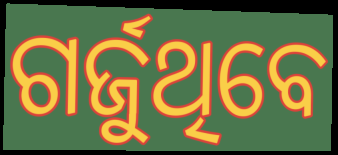
ଗର୍ଜୁଥିବେ